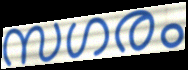
സഗരം